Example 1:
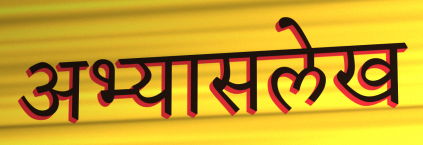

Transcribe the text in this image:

अभ्यासलेख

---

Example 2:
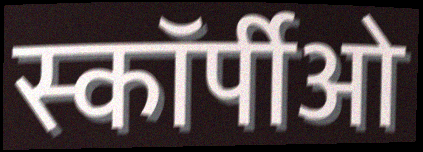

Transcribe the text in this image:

स्कॉर्पीओ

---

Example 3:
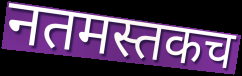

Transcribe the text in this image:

नतमस्तकच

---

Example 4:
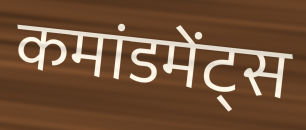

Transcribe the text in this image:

कमांडमेंट्स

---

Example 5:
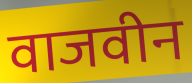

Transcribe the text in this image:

वाजवीन